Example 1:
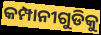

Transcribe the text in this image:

କମ୍ପାନୀଗୁଡିକୁ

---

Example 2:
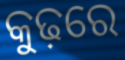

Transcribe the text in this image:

କୁଢ଼ରେ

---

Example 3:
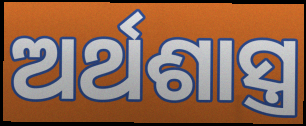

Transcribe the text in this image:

ଅର୍ଥଶାସ୍ତ୍ର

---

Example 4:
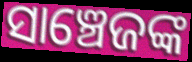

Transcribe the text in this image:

ସାଞ୍ଚେଜଙ୍କ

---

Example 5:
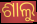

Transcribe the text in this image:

ଶାଲୁ